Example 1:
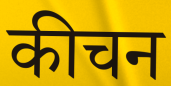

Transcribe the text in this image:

कीचन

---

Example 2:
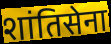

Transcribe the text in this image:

शांतिसेना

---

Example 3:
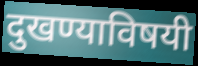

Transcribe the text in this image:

दुखण्याविषयी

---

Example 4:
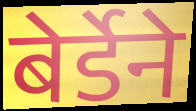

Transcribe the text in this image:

बेर्डेने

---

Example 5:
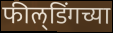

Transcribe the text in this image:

फील्डिंगच्या